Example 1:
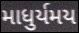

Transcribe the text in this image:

માધુર્યમય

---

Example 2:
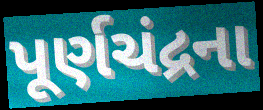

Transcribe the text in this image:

પૂર્ણચંદ્રના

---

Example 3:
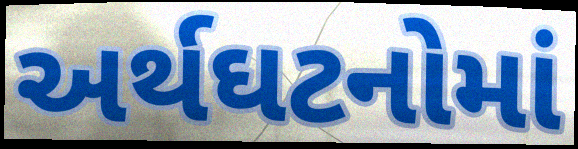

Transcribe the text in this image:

અર્થઘટનોમાં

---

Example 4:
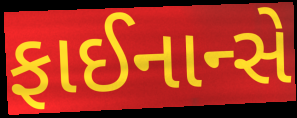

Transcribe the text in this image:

ફાઈનાન્સે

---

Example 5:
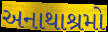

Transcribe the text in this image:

અનાથાશ્રમો